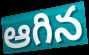
ఆగిన